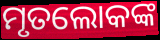
ମୃତଲୋକଙ୍କ